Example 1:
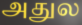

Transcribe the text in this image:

அதுல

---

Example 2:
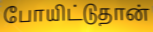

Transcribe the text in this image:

போயிட்டுதான்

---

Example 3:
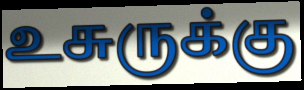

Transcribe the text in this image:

உசுருக்கு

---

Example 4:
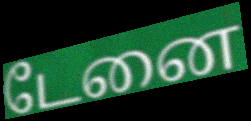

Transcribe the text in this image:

டேனை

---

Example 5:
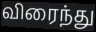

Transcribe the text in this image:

விரைந்து